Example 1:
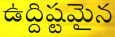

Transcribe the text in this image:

ఉద్దిష్టమైన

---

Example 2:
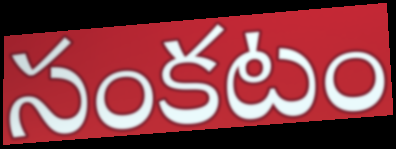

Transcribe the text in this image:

సంకటం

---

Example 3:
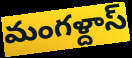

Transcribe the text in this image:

మంగళ్దాస్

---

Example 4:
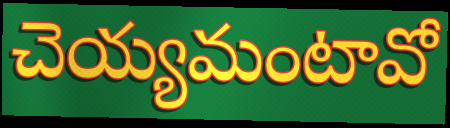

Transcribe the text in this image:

చెయ్యమంటావో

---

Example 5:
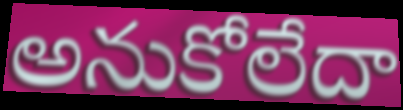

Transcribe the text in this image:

అనుకోలేదా